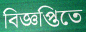
বিজ্ঞপ্তিতে